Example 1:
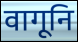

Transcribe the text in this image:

वागूनि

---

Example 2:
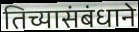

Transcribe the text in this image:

तिच्यासंबंधाने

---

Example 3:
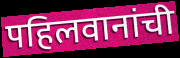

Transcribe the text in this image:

पहिलवानांची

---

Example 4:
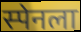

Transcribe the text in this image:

स्पेनला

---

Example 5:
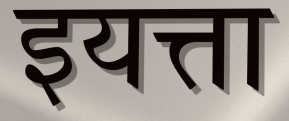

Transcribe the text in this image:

इयत्ता